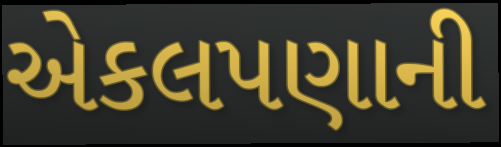
એકલપણાની